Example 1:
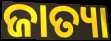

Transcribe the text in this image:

ଜାତ୍ୟା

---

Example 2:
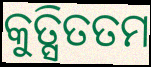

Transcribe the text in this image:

କୁତ୍ସିତତମ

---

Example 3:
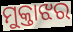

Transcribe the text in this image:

ମୁକ୍ତାଝର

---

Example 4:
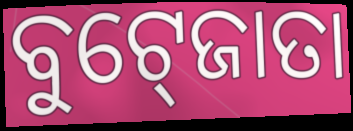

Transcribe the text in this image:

ବୁଟ୍‍ଜୋତା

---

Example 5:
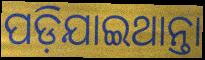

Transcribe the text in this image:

ପଡ଼ିଯାଇଥାନ୍ତା